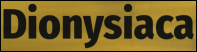
Dionysiaca